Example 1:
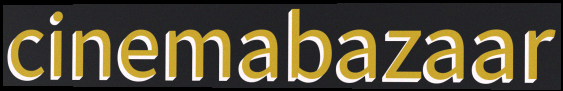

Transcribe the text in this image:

cinemabazaar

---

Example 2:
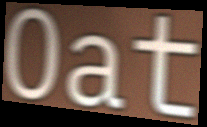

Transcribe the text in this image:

Oat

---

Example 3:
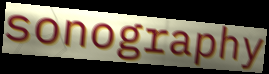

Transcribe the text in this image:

sonography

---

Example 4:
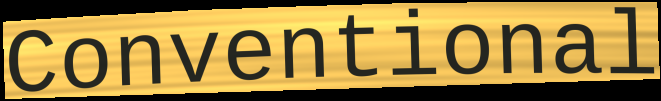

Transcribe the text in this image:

Conventional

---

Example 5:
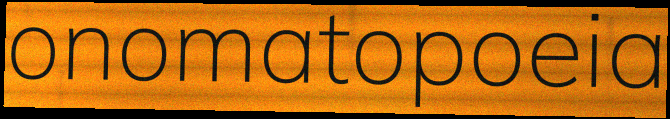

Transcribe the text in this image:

onomatopoeia